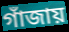
গাঁজায়